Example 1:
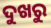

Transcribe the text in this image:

ଦୁଖରୁ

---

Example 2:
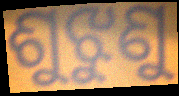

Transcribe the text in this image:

ଶୁଝୁଣୁ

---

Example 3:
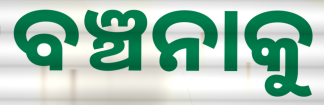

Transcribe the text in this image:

ବଞ୍ଚନାକୁ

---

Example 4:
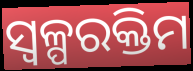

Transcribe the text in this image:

ସ୍ୱଳ୍ପରକ୍ତିମ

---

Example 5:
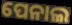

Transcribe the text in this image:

ପେନାଲ